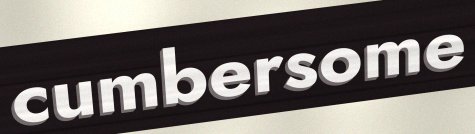
cumbersome